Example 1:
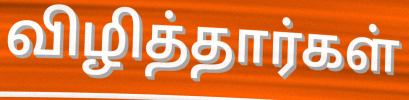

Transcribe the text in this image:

விழித்தார்கள்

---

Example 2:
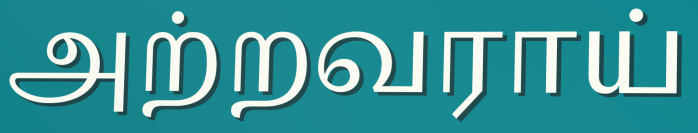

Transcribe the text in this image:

அற்றவராய்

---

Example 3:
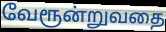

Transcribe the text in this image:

வேரூன்றுவதை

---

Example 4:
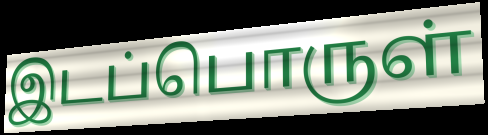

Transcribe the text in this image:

இடப்பொருள்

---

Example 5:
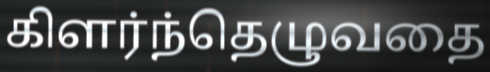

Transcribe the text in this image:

கிளர்ந்தெழுவதை